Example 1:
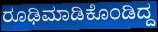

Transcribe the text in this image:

ರೂಢಿಮಾಡಿಕೊಂಡಿದ್ದ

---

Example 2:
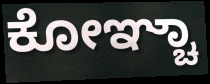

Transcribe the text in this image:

ಕೋಞ್ಚಾ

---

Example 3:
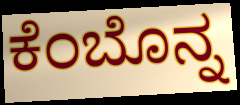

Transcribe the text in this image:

ಕೆಂಬೊನ್ನ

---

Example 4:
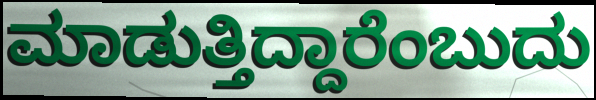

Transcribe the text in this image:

ಮಾಡುತ್ತಿದ್ದಾರೆಂಬುದು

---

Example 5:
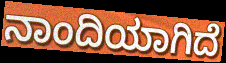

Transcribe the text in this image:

ನಾಂದಿಯಾಗಿದೆ